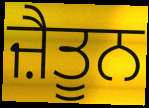
ਜ਼ੈਤੂਨ